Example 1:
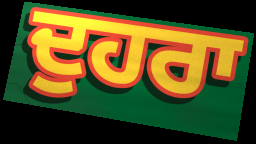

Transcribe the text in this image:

ਦੁਹਰਾ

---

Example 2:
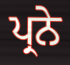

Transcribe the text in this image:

ਪ੍ਰਨੇ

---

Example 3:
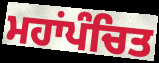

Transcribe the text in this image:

ਮਹਾਂਪੰਚਿਤ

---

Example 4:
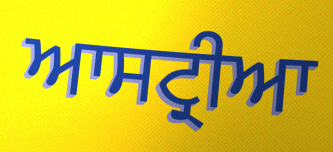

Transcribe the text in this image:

ਆਸਟ੍ਰੀਆ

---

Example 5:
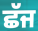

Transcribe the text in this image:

ਛੱਜ